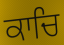
ਕਾਚਿ